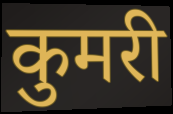
कुमरी